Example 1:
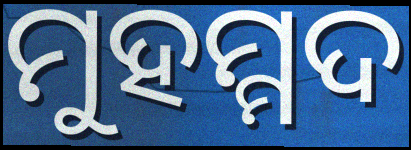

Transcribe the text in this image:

ମୁହମ୍ମଦ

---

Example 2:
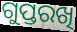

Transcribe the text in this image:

ଗୁପ୍ତରଖି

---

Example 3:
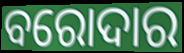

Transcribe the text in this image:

ବରୋଦାର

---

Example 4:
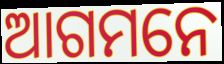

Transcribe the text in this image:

ଆଗମନେ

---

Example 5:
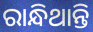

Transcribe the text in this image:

ରାନ୍ଧିଥାନ୍ତି